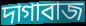
দাগাবাজ